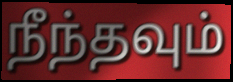
நீந்தவும்